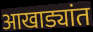
आखाड्यांत